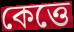
কেত্তে